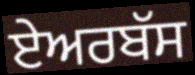
ਏਅਰਬੱਸ